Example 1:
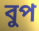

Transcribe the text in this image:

বুপ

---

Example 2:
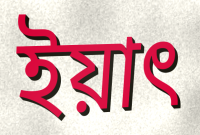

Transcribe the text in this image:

ইয়াৎ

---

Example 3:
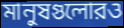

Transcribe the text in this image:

মানুষগুলোরও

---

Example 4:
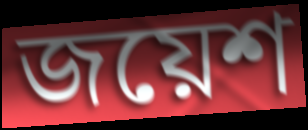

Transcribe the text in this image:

জয়েশ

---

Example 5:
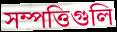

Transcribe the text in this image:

সম্পত্তিগুলি